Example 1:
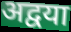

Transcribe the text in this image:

अद्वया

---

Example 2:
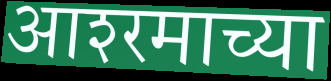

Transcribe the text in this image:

आश्रमाच्या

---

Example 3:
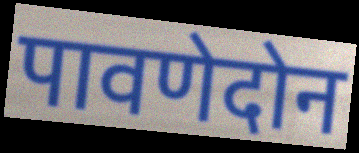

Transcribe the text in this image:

पावणेदोन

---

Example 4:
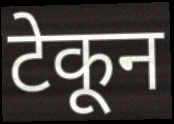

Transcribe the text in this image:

टेकून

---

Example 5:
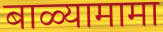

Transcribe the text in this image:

बाळ्यामामा